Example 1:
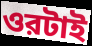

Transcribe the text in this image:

ওরটাই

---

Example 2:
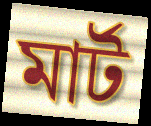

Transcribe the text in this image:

মার্ট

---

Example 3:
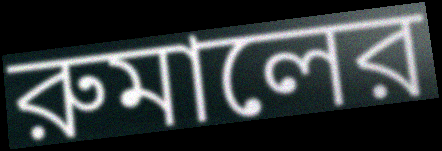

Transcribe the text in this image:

রুমালের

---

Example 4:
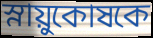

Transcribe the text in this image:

স্নায়ুকোষকে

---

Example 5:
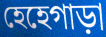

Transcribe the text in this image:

হেহেগাড়া